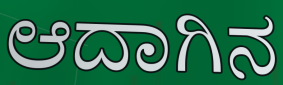
ಆದಾಗಿನ